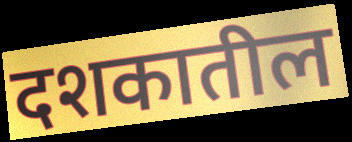
दशकातील